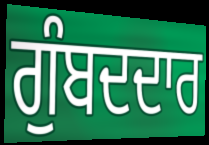
ਗੁੰਬਦਦਾਰ